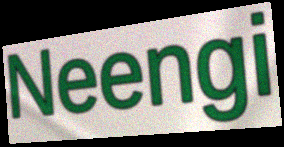
Neengi